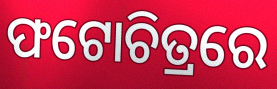
ଫଟୋଚିତ୍ରରେ